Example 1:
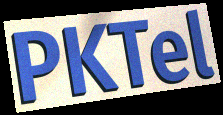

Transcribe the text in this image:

PKTel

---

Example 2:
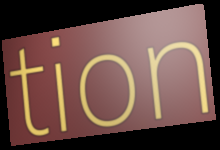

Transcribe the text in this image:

tion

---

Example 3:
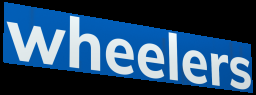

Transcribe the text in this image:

wheelers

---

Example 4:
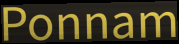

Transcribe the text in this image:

Ponnam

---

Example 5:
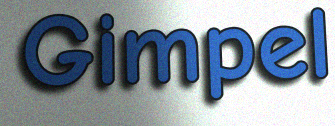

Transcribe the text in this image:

Gimpel